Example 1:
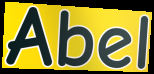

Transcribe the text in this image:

Abel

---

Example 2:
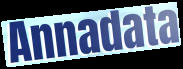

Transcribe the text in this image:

Annadata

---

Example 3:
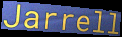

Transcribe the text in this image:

Jarrell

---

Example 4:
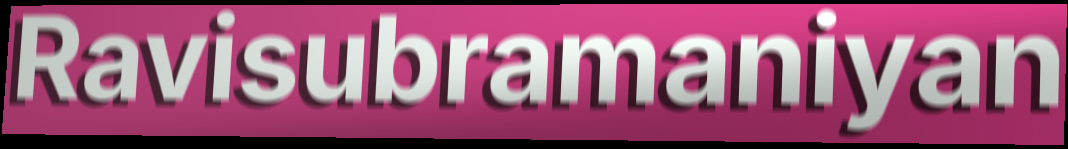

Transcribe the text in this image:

Ravisubramaniyan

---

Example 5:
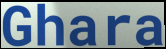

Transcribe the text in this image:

Ghara